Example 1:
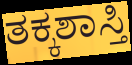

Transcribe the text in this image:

ತಕ್ಕಶಾಸ್ತಿ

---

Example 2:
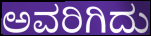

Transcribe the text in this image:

ಅವರಿಗಿದು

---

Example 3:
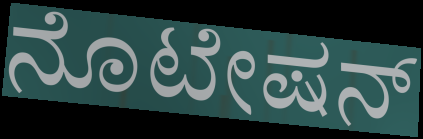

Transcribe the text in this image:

ನೊಟೇಷನ್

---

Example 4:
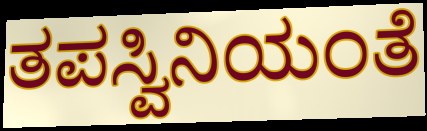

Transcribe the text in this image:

ತಪಸ್ವಿನಿಯಂತೆ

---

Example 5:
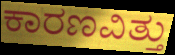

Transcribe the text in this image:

ಕಾರಣವಿತ್ತು